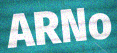
ARNo